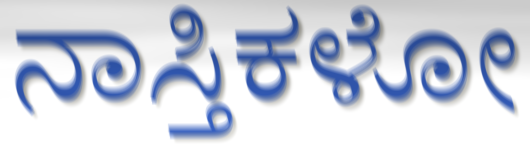
ನಾಸ್ತಿಕಳೋ